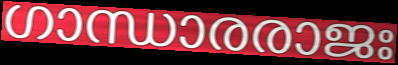
ഗാന്ധാരരാജഃ